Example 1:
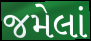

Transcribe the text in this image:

જમેલાં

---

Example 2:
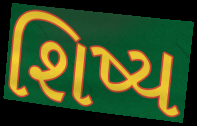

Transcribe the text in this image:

શિષ્ય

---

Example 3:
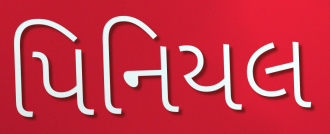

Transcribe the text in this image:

પિનિયલ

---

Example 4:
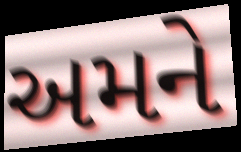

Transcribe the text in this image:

અમને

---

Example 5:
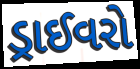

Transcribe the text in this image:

ડ્રાઈવરો